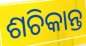
ଶଚିକାନ୍ତ